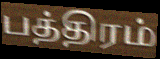
பத்திரம்